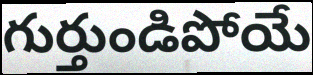
గుర్తుండిపోయే